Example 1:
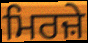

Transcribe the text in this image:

ਮਿਰਜ਼ੇ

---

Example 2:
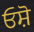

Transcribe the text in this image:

ਓਸ਼ੋ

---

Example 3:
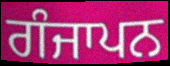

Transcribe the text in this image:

ਗੰਜਾਪਨ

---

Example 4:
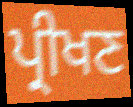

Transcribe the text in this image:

ਪ੍ਰੀਖਣ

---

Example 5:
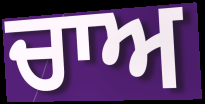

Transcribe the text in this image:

ਚਾਅ